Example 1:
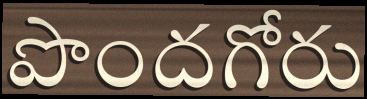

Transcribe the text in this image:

పొందగోరు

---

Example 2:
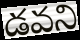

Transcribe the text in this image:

డవని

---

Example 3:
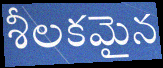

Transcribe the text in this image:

శీలకమైన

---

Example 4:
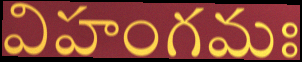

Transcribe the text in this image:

విహంగమః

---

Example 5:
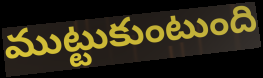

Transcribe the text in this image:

ముట్టుకుంటుంది